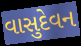
વાસુદેવન